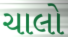
ચાલો